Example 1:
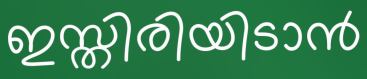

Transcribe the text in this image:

ഇസ്തിരിയിടാൻ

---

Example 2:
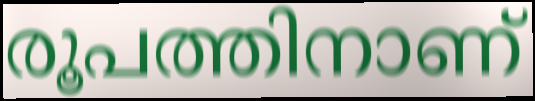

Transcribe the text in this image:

രൂപത്തിനാണ്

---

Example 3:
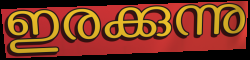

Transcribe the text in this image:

ഇരക്കുന്നു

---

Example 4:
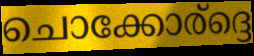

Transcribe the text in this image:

ചൊക്കോര്ദ്ദെ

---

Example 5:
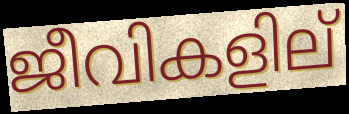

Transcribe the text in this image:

ജീവികളില്